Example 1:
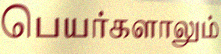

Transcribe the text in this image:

பெயர்களாலும்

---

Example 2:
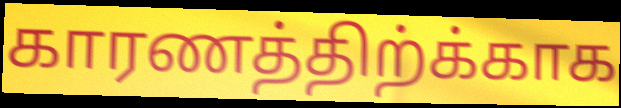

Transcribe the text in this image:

காரணத்திற்க்காக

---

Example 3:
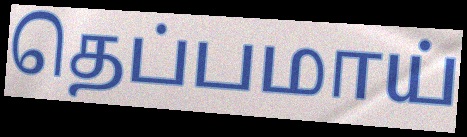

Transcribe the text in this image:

தெப்பமாய்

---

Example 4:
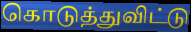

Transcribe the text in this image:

கொடுத்துவிட்டு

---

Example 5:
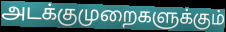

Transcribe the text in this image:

அடக்குமுறைகளுக்கும்